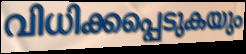
വിധിക്കപ്പെടുകയും